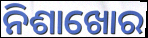
ନିଶାଖୋର